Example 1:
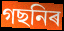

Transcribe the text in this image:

গছনিৰ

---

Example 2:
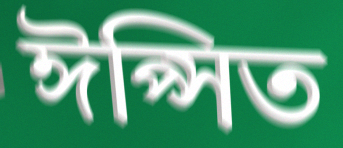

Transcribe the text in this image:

ঈপ্সিত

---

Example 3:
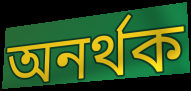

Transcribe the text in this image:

অনৰ্থক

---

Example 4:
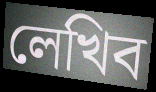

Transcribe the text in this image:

লেখিব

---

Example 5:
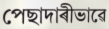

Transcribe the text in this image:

পেছাদাৰীভাৱে